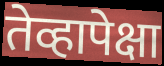
तेव्हापेक्षा